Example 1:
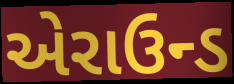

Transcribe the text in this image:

એરાઉન્ડ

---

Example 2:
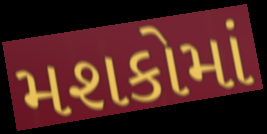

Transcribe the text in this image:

મશકોમાં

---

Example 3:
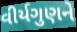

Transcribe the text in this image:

વીર્યગુણને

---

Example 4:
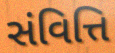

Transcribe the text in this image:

સંવિત્તિ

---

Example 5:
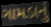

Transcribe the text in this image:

ગામડાનું